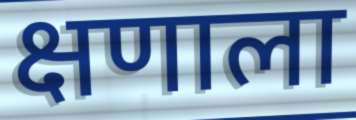
क्षणाला